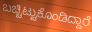
ಬಚ್ಚಿಟ್ಟುಕೊಂಡಿದ್ದಾರೆ